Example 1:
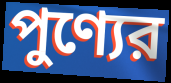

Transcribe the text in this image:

পুণ্যের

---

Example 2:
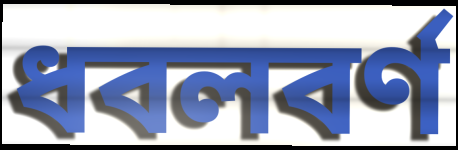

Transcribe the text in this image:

ধবলবর্ণ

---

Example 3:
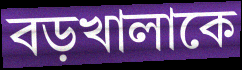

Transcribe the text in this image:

বড়খালাকে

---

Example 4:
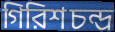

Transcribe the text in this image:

গিরিশচন্দ্র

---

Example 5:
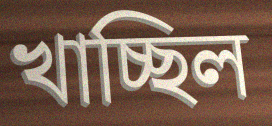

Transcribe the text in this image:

খাচ্ছিল